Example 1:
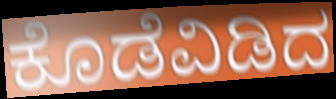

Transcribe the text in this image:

ಕೊಡೆವಿಡಿದ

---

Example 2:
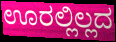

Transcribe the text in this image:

ಊರಲ್ಲಿಲ್ಲದ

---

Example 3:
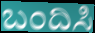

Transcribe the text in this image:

ಬಂದಿಸಿ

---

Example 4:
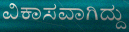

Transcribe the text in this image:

ವಿಕಾಸವಾಗಿದ್ದು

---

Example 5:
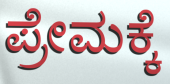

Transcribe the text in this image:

ಪ್ರೇಮಕ್ಕೆ